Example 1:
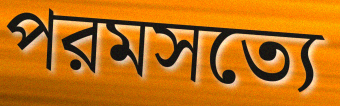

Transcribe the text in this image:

পরমসত্যে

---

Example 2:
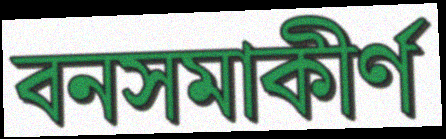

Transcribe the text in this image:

বনসমাকীর্ণ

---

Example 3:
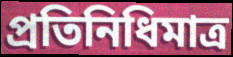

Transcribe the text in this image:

প্রতিনিধিমাত্র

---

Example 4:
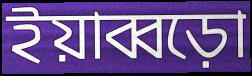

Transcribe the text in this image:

ইয়াব্বড়ো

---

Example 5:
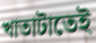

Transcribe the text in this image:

খাতাটাতেই